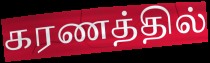
கரணத்தில்